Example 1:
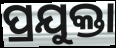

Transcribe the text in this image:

ପ୍ରଯୁକ୍ତା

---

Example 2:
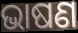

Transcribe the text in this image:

ଭାଷଣ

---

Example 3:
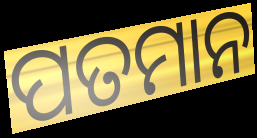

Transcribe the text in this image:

ପତମାନ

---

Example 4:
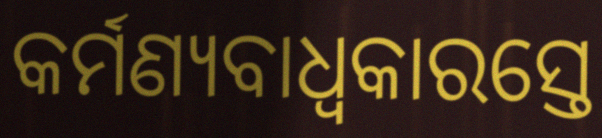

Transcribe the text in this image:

କର୍ମଣ୍ୟବାଧ୍ୱକାରସ୍ତେ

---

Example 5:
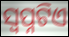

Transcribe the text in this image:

ସ୍ବପ୍ନଟିଏ